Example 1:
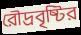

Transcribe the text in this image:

রৌদ্রবৃষ্টির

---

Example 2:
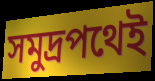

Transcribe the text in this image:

সমুদ্রপথেই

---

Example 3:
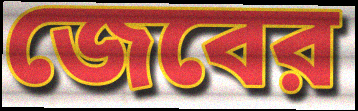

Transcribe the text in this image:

জেবের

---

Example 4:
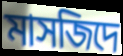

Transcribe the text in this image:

মাসজিদে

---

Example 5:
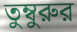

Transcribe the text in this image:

তুম্বুরুর